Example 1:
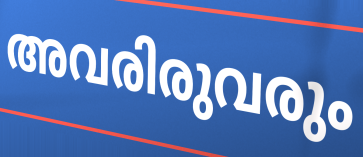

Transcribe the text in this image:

അവരിരുവരും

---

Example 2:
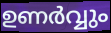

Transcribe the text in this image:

ഉണർവ്വും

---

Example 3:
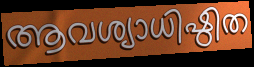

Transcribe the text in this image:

ആവശ്യാധിഷ്ഠിത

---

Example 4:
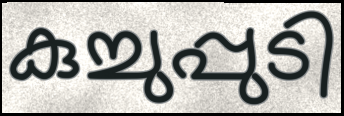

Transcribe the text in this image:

കുച്ചുപ്പുടി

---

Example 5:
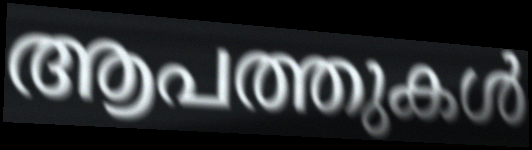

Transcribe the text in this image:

ആപത്തുകൾ